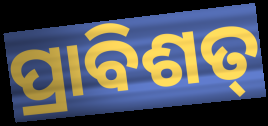
ପ୍ରାବିଶତ୍